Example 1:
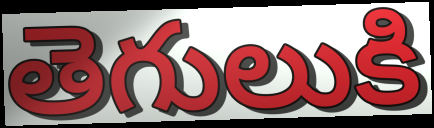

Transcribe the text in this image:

తెగులుకి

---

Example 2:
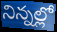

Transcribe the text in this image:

నిన్నల్లో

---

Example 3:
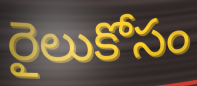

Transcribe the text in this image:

రైలుకోసం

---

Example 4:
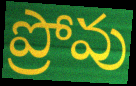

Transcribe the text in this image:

ప్రోవు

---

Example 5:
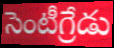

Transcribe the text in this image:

సెంటీగ్రేడు